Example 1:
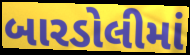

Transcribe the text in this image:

બારડોલીમાં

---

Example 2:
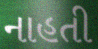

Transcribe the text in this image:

નાહતી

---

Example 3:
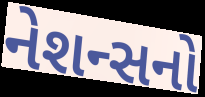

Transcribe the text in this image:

નેશન્સનો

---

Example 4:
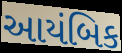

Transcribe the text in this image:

આયંબિક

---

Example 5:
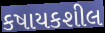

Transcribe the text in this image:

કષાયકશીલ